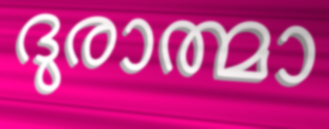
ദുരാത്മാ